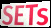
SETs